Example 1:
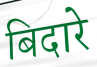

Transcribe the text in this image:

बिदारे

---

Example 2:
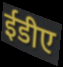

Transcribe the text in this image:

ईडीए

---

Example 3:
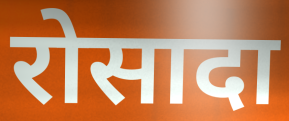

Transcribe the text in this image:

रोसादा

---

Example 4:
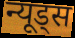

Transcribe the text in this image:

न्यूड्स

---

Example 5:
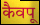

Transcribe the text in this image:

कैवपू